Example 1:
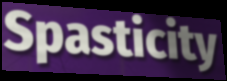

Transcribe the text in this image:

Spasticity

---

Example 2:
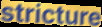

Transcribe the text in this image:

stricture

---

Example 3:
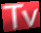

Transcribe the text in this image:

Tv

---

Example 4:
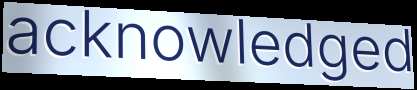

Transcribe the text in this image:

acknowledged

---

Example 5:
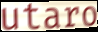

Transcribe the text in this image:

utaro